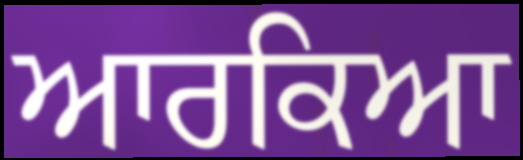
ਆਰਕਿਆ